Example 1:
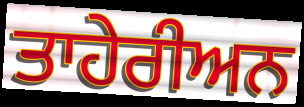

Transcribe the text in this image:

ਤਾਹੇਰੀਅਨ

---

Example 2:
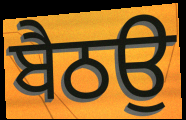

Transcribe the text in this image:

ਬੈਠਉ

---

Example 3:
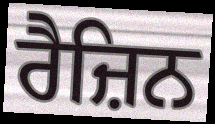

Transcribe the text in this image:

ਰੈਜ਼ਿਨ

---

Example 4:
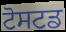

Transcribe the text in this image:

ਟੋਸਟਡ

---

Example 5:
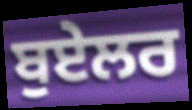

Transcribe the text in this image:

ਬੁਏਲਰ